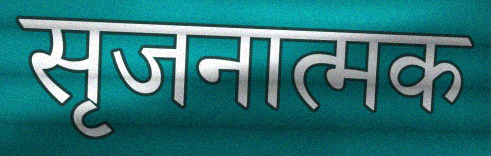
सृजनात्मक